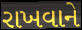
રાખવાને